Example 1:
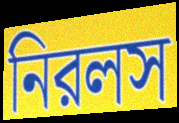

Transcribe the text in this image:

নিরলস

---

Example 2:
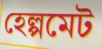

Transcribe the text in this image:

হেল্পমেট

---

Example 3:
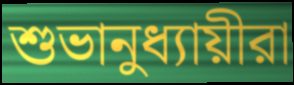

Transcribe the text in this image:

শুভানুধ্যায়ীরা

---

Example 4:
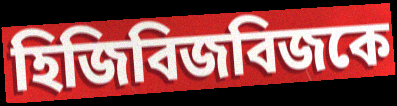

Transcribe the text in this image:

হিজিবিজবিজকে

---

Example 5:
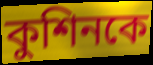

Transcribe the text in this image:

কুশিনকে